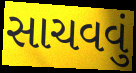
સાચવવું